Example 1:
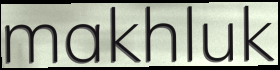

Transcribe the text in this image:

makhluk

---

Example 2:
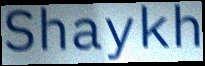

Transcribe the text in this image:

Shaykh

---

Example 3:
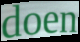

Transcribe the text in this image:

doen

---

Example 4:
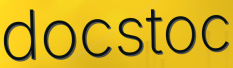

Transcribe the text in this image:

docstoc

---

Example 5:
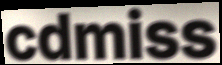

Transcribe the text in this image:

cdmiss